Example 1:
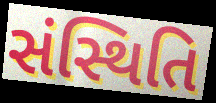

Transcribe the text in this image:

સંસ્થિતિ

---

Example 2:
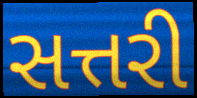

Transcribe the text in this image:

સત્તરી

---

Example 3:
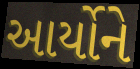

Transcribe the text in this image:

આર્યોને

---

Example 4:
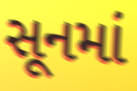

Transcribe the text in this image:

સૂનમાં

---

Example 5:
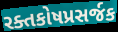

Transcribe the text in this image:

રક્તકોષપ્રસર્જક